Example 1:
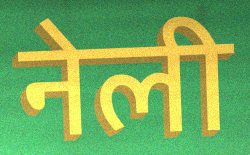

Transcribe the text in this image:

नेली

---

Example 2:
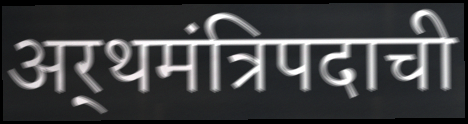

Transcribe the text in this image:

अर्थमंत्रिपदाची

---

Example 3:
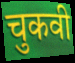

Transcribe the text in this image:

चुकवी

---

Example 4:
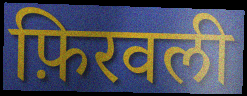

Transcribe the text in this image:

फ़िरवली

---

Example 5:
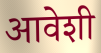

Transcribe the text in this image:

आवेशी